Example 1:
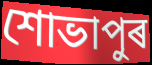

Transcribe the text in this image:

শোভাপুৰ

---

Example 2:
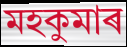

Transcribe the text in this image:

মহকুমাৰ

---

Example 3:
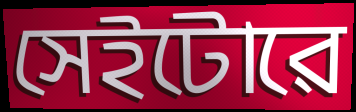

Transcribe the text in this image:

সেইটোৱে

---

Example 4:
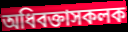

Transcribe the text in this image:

অধিবক্তাসকলক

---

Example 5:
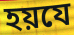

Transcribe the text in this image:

হয়যে